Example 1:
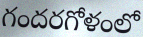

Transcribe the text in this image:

గందరగోళంలో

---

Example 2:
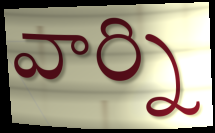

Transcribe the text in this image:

వార్ని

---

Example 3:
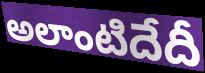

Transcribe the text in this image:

అలాంటిదేదీ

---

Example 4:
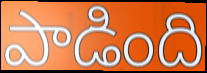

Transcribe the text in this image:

పాడింది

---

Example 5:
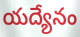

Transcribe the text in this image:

యద్యేనం